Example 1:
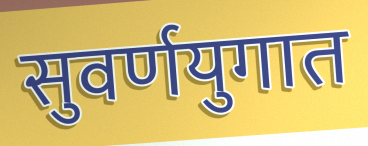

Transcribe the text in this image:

सुवर्णयुगात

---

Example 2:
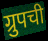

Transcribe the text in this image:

ग्रुपची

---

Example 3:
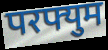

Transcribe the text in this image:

परफ्युम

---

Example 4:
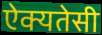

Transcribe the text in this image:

ऐक्यतेसी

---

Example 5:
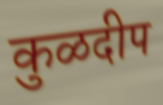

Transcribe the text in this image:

कुळदीप